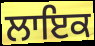
ਲਾਇਕ